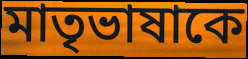
মাতৃভাষাকে